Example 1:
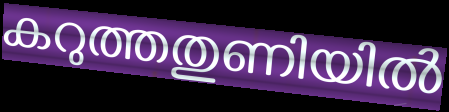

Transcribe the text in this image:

കറുത്തതുണിയിൽ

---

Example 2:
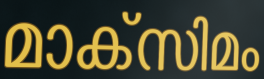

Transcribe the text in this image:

മാക്‌സിമം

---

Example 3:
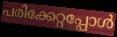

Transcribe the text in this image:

പരിക്കേറ്റപ്പോൾ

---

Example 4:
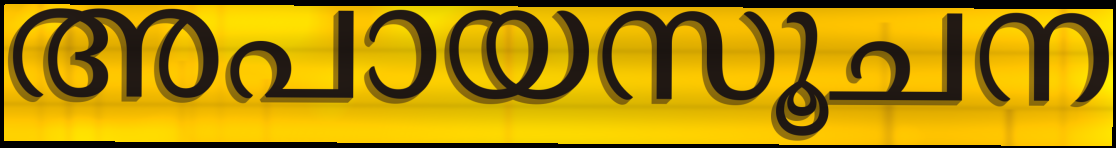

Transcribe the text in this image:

അപായസൂചന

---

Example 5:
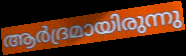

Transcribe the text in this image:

ആർദ്രമായിരുന്നു